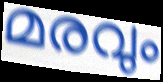
മരവും